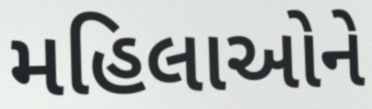
મહિલાઓને